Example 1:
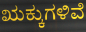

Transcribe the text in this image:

ಋಕ್ಕುಗಳಿವೆ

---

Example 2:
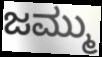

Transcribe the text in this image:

ಜಮ್ಮು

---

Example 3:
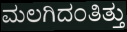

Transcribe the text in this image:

ಮಲಗಿದಂತಿತ್ತು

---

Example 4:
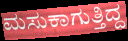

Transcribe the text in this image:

ಮಸುಕಾಗುತ್ತಿದ್ದ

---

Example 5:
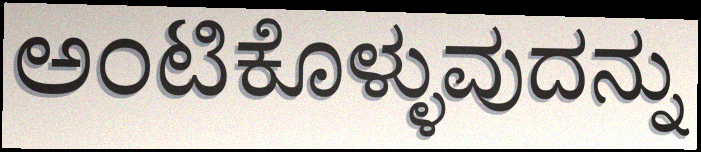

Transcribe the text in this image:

ಅಂಟಿಕೊಳ್ಳುವುದನ್ನು